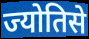
ज्योतिसे